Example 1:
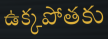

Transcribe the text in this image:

ఉక్కపోతకు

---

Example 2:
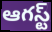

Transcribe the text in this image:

ఆగస్ట్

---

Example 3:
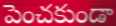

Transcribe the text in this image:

పెంచకుండా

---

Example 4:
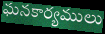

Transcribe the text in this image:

ఘనకార్యములు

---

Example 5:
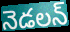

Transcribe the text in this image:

నెడలన్